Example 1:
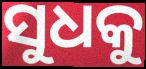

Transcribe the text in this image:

ସୁଧକୁ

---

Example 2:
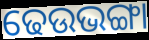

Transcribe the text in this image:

ଢେଉଭଙ୍ଗା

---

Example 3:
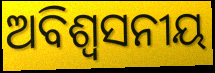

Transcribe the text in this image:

ଅବିଶ୍ବସନୀୟ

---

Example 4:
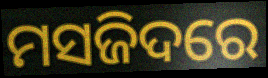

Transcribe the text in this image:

ମସଜିଦରେ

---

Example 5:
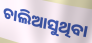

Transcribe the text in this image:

ଚାଲିଆସୁଥିବା